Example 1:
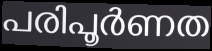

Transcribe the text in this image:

പരിപൂർണത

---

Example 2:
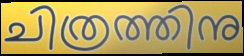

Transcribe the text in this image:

ചിത്രത്തിനു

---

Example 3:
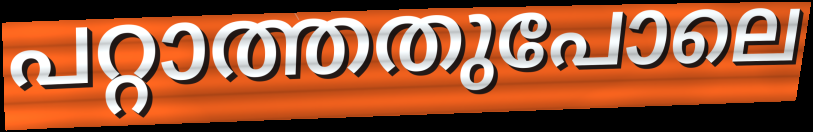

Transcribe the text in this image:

പറ്റാത്തതുപോലെ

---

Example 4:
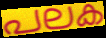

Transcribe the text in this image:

പലക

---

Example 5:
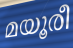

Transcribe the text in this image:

മയൂരീ